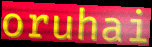
oruhai